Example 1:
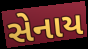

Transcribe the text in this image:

સેનાય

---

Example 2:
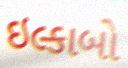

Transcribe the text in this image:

ઇલ્કાબો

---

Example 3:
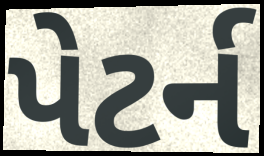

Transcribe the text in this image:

પેટર્ન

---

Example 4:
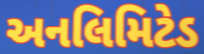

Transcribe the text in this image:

અનલિમિટેડ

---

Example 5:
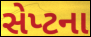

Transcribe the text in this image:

સેપ્ટના